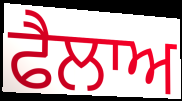
ਫੈਲਾਅ